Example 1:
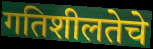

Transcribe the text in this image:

गतिशीलतेचे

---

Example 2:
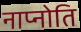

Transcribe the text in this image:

नाप्नोति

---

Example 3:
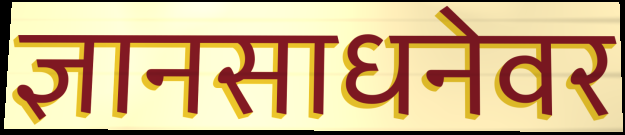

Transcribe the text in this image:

ज्ञानसाधनेवर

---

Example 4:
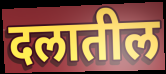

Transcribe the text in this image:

दलातील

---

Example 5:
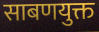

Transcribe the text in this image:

साबणयुक्त